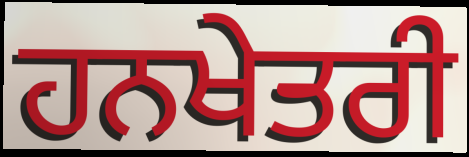
ਹਨਖੇਤਰੀ